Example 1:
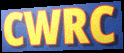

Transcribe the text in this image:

CWRC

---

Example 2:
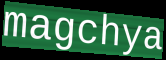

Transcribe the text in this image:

magchya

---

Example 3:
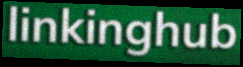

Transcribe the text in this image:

linkinghub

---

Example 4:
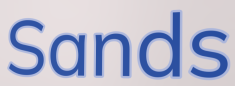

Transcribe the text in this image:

Sands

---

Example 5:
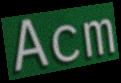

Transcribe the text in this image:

Acm